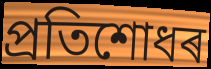
প্ৰতিশোধৰ